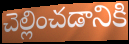
చెల్లించడానికి